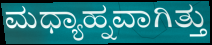
ಮಧ್ಯಾಹ್ನವಾಗಿತ್ತು